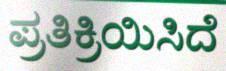
ಪ್ರತಿಕ್ರಿಯಿಸಿದೆ